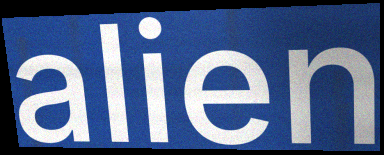
alien